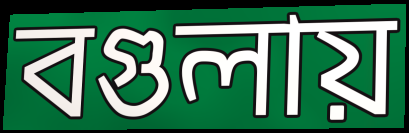
বগুলায়